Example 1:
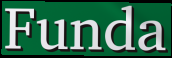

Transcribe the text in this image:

Funda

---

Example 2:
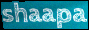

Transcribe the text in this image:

shaapa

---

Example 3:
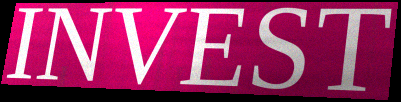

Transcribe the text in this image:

INVEST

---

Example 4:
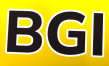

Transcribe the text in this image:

BGI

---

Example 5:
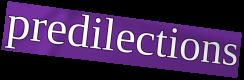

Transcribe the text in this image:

predilections